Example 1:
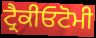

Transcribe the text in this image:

ਟ੍ਰੈਕੀਓਟੋਮੀ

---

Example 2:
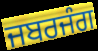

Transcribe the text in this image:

ਜਬਰਜੰਗ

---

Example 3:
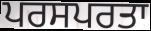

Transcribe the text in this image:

ਪਰਸਪਰਤਾ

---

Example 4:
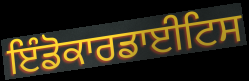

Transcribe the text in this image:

ਇੰਡੋਕਾਰਡਾਈਟਿਸ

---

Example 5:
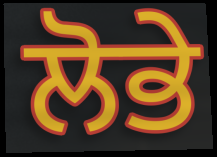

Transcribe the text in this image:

ਲੋਭੇ